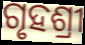
ଗୃହଶ୍ରୀ